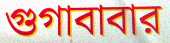
গুগাবাবার